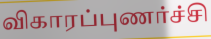
விகாரப்புணர்ச்சி